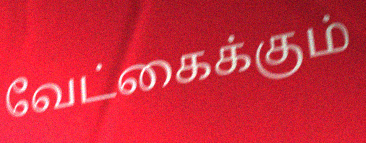
வேட்கைக்கும்